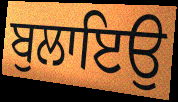
ਬੁਲਾਇਉ